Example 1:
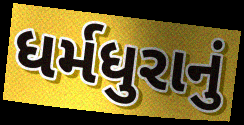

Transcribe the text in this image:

ધર્મધુરાનું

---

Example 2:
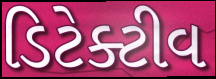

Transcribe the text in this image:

ડિટેક્ટીવ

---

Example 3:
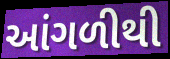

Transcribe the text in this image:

આંગળીથી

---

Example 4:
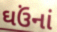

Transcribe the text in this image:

ઘઉંનાં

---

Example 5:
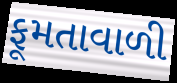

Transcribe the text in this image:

ફૂમતાવાળી